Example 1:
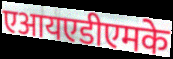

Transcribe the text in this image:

एआयएडीएमके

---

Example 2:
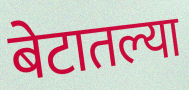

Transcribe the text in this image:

बेटातल्या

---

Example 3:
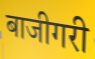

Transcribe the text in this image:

बाजीगरी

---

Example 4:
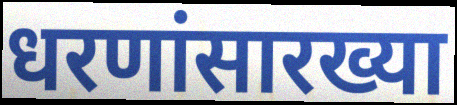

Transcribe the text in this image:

धरणांसारख्या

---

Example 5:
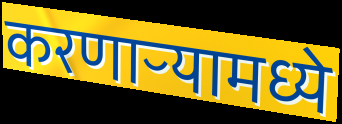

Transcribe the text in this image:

करणाऱ्यामध्ये